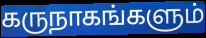
கருநாகங்களும்